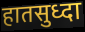
हातसुध्दा